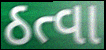
ઠત્વા